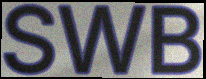
SWB